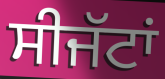
ਸੀਜੱਟਾਂ